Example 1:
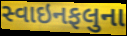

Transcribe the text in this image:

સ્વાઇનફલુના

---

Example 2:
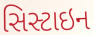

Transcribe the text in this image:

સિસ્ટાઇન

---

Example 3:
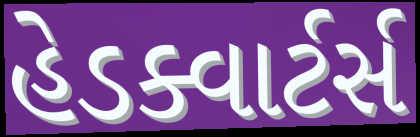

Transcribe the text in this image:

હેડક્વાર્ટર્સ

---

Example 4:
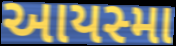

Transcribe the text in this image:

આયસ્મા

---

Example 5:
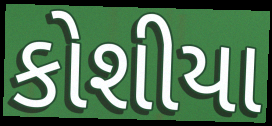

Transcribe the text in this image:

કોશીયા